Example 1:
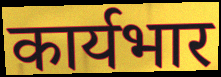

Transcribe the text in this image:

कार्यभार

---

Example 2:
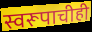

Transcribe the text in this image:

स्वरूपाचीही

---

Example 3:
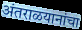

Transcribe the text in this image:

अंतराळयानांचा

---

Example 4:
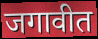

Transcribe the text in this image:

जगावीत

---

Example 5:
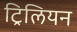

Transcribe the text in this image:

ट्रिलियन